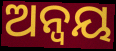
ଅନ୍ଵୟ